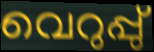
വെറുപ്പു്